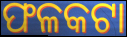
ଫଳକଟା